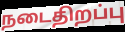
நடைதிறப்பு